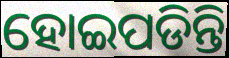
ହୋଇପଡିନ୍ତି